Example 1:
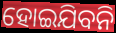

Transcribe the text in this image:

ହୋଇଯିବନି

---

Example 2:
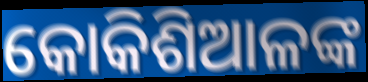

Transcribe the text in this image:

କୋକିଶିଆଳଙ୍କ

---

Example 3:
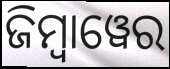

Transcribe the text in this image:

ଜିମ୍ୱାୱେର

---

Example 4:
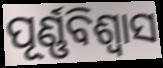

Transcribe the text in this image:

ପୂର୍ଣ୍ଣବିଶ୍ଵାସ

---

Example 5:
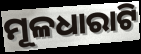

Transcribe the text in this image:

ମୂଳଧାରାଟି